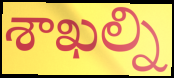
శాఖల్ని